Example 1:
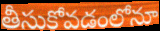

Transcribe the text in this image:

తీసుకోవడంలోనూ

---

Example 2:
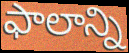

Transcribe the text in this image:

ఫాలాన్ని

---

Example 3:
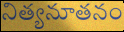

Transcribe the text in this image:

నిత్యనూతనం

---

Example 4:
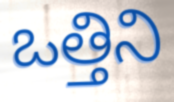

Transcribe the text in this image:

ఒత్తిని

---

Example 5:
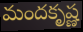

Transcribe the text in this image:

మందకృష్ణ